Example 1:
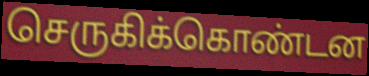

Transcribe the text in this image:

செருகிக்கொண்டன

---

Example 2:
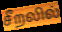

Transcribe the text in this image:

சீறலில்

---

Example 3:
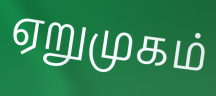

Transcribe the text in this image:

ஏறுமுகம்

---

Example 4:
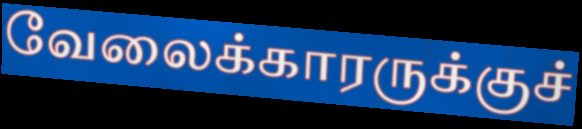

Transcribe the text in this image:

வேலைக்காரருக்குச்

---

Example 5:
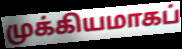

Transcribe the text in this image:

முக்கியமாகப்